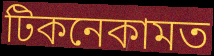
টিকনেকামত